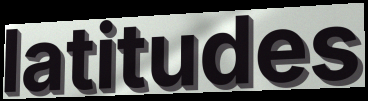
latitudes